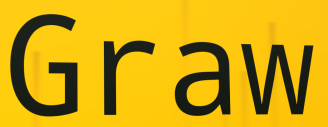
Graw